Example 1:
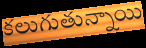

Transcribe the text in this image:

కలుగుతున్నాయి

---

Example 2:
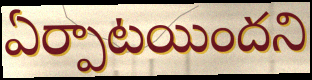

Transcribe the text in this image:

ఏర్పాటయిందని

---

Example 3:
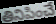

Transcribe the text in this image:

తినిపించే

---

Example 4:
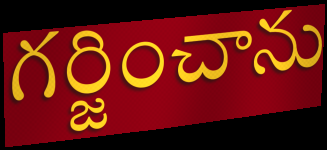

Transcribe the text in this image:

గర్జించాను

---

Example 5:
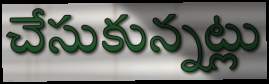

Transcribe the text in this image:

చేసుకున్నట్లు